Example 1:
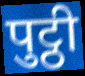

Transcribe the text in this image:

पुट्ठी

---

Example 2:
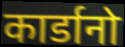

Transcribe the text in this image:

कार्डानो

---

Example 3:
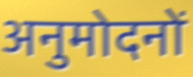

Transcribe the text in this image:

अनुमोदनों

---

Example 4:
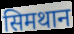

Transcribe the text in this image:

सिमथान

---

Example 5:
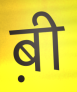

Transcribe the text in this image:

ब़ी